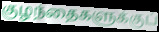
குழந்தைகளுக்குப்